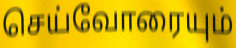
செய்வோரையும்